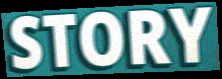
STORY